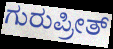
ಗುರುಪ್ರೀತ್